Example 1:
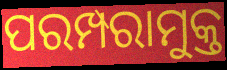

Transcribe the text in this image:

ପରମ୍ପରାମୁକ୍ତ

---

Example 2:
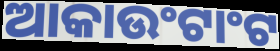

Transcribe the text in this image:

ଆକାଉଂଟାଂଟ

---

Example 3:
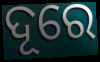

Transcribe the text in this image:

ଦୂରେ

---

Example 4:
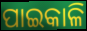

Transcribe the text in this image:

ପାଇକାଳି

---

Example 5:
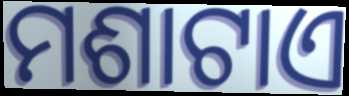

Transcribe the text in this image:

ମଶାଟାଏ